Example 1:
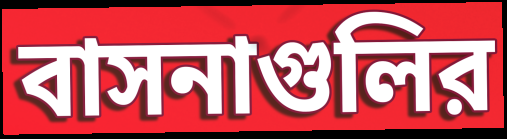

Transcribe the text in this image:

বাসনাগুলির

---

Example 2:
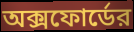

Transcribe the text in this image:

অক্সফোর্ডের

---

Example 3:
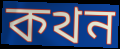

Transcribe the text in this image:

কথন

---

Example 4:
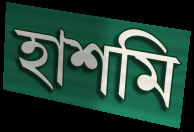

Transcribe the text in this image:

হাশমি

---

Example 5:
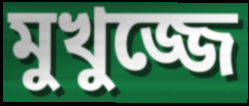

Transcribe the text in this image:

মুখুজ্জে